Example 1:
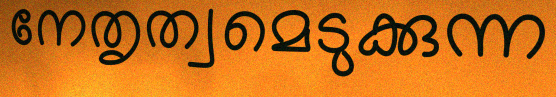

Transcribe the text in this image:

നേതൃത്വമെടുക്കുന്ന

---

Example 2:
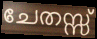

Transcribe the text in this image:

ചേതസ്സ്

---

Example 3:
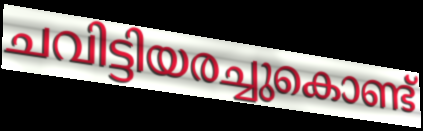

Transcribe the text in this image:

ചവിട്ടിയരച്ചുകൊണ്ട്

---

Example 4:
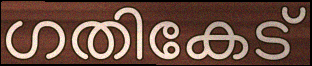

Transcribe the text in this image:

ഗതികേട്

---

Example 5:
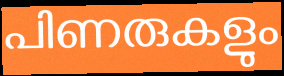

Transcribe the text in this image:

പിണരുകളും